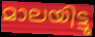
മാലയിട്ടു